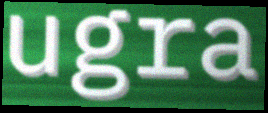
ugra